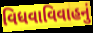
વિધવાવિવાહનું